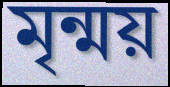
মৃন্ময়